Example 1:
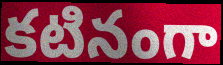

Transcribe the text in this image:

కటినంగా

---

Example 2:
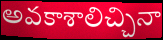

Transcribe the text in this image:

అవకాశాలిచ్చినా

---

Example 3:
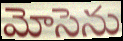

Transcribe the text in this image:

మోసెను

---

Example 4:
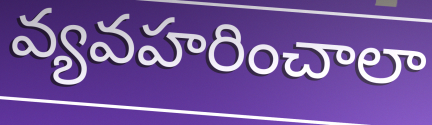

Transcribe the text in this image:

వ్యవహరించాలా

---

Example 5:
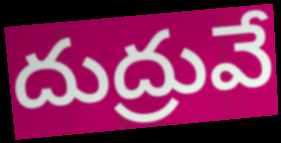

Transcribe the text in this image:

దుద్రువే